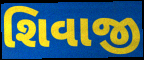
શિવાજી